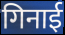
गिनाई